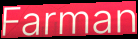
Farman